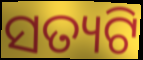
ସତ୍ୟଟି